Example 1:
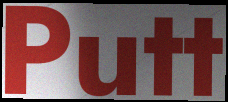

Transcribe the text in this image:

Putt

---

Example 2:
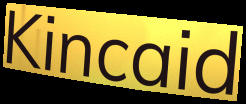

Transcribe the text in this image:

Kincaid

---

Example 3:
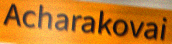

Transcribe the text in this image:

Acharakovai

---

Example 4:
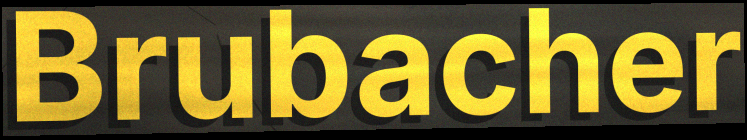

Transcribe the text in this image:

Brubacher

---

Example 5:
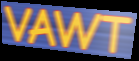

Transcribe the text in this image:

VAWT